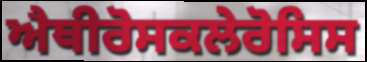
ਐਥੀਰੋਸਕਲੇਰੋਸਿਸ